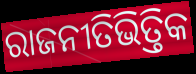
ରାଜନୀତିଭିତ୍ତିକ